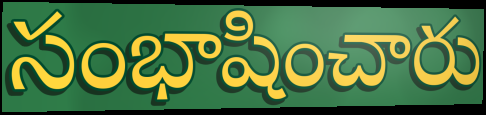
సంభాషించారు